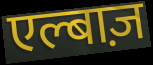
एल्बाज़